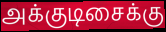
அக்குடிசைக்கு